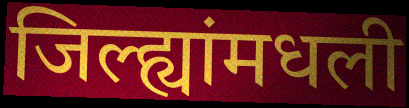
जिल्ह्यांमधली